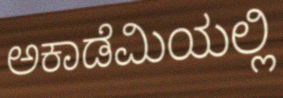
ಅಕಾಡೆಮಿಯಲ್ಲಿ